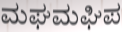
ಮಘಮಘಿಪ